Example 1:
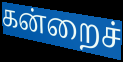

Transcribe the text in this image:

கன்றைச்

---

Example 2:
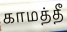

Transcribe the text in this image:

காமத்தீ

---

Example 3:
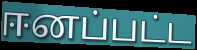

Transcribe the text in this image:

ஈனப்பட்ட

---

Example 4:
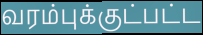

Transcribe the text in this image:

வரம்புக்குட்பட்ட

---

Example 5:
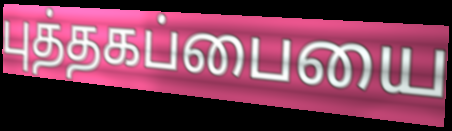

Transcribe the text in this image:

புத்தகப்பையை